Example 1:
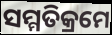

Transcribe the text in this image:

ସମ୍ମତିକ୍ରମେ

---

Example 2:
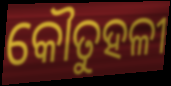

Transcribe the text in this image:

କୌତୁହଳୀ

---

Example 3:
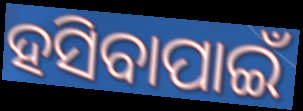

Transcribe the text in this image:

ହସିବାପାଇଁ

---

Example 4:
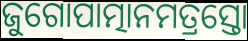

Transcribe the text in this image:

ଜୁଗୋପାତ୍ମାନମତ୍ରସ୍ତୋ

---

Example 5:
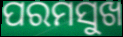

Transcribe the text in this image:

ପରମସୁଖ